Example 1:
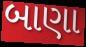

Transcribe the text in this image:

બાણા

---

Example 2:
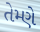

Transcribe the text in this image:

તેમ્ણે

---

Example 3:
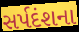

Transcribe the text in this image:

સર્પદંશના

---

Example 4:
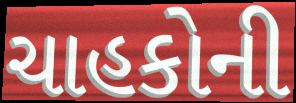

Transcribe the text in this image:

ચાહકોની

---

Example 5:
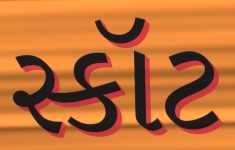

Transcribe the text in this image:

સ્કૉટ